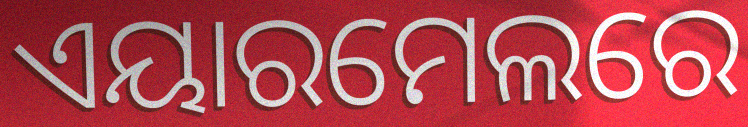
ଏୟାରମେଲରେ